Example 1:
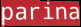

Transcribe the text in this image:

parina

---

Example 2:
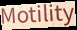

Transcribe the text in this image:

Motility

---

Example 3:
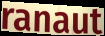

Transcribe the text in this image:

ranaut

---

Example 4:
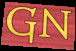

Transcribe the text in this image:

GN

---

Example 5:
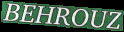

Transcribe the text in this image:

BEHROUZ